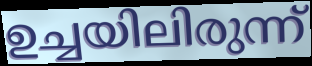
ഉച്ചയിലിരുന്ന്